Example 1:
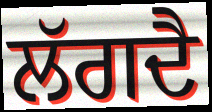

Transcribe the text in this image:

ਲੱਗਦੈ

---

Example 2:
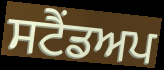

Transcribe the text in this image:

ਸਟੈਂਡਅਪ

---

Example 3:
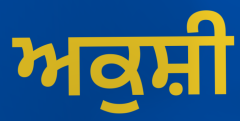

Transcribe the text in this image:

ਅਕੁਸ਼ੀ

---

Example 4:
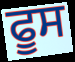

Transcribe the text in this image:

ਫੂਸ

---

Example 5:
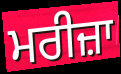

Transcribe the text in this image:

ਮਰੀਜ਼ਾ